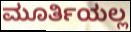
ಮೂರ್ತಿಯಲ್ಲ